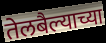
तेलबैल्याच्या